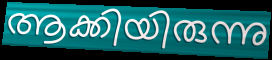
ആക്കിയിരുന്നു